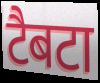
टैबटा